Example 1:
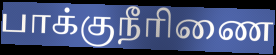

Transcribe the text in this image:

பாக்குநீரிணை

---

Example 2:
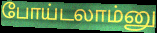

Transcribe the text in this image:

போய்டலாம்னு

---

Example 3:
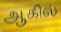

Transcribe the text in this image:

ஆகில்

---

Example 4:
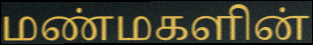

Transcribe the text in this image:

மண்மகளின்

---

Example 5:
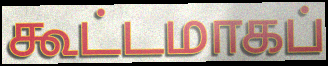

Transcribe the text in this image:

கூட்டமாகப்